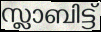
സ്ലാബിട്ട്